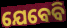
ଯେବେବି